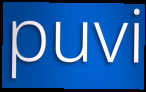
puvi